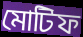
মোটিফ